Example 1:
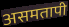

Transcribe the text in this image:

असमतापी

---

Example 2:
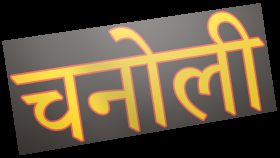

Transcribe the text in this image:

चनोली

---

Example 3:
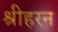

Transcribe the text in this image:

श्रीहरन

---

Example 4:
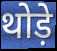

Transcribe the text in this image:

थोड़े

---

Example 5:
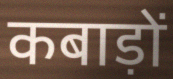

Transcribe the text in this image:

कबाड़ों